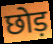
छोड़